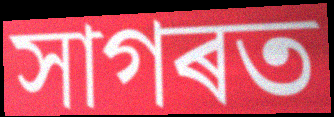
সাগৰত